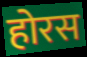
होरस